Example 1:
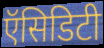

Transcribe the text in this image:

ऍसिडिटी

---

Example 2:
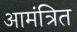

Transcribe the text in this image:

आमंत्रित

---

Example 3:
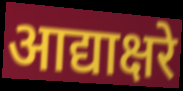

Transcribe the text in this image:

आद्याक्षरे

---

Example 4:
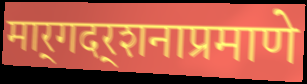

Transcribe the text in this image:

मार्गदर्शनाप्रमाणे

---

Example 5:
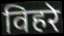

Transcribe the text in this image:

विहरे